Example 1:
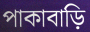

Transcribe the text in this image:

পাকাবাড়ি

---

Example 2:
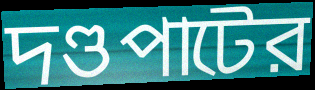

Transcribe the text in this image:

দণ্ডপাটের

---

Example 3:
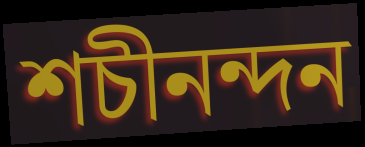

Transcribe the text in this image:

শচীনন্দন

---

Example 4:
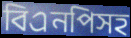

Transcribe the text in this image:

বিএনপিসহ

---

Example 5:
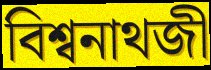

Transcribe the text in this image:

বিশ্বনাথজী